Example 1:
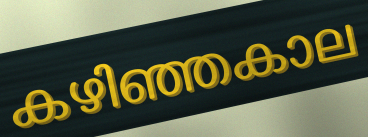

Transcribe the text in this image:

കഴിഞ്ഞകാല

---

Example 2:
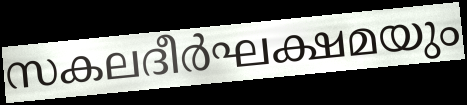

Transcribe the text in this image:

സകലദീർഘക്ഷമയും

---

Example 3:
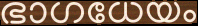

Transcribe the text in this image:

ഭാഗധേയം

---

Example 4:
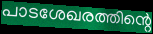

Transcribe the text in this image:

പാടശേഖരത്തിന്റെ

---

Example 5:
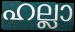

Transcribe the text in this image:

ഹല്ലാ